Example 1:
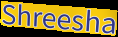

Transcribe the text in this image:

Shreesha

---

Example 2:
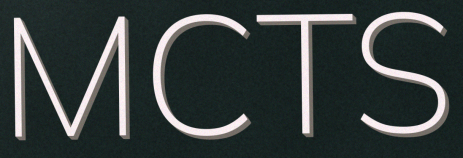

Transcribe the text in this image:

MCTS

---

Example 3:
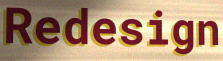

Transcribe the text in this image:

Redesign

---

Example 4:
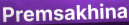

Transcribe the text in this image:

Premsakhina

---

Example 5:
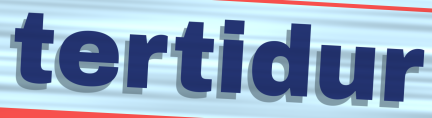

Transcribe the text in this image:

tertidur